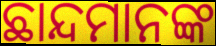
ଛାନ୍ଦମାନଙ୍କ